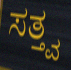
ಸತ್ತ್ವ